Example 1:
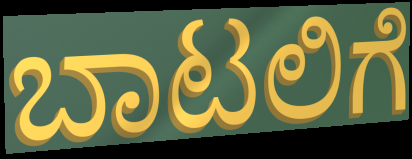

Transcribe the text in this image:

ಬಾಟಲಿಗೆ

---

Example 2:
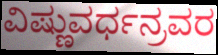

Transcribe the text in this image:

ವಿಷ್ಣುವರ್ಧನ್ರವರ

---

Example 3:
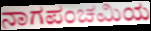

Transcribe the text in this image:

ನಾಗಪಂಚಮಿಯ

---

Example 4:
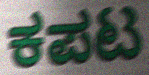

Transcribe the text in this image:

ಕಪಟ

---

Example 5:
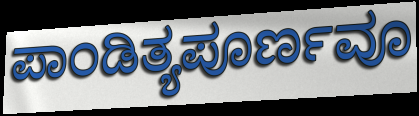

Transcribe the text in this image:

ಪಾಂಡಿತ್ಯಪೂರ್ಣವೂ